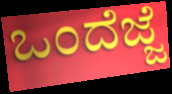
ಒಂದೆಜ್ಜೆ